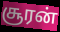
சூரன்